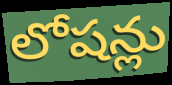
లోషన్లు